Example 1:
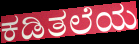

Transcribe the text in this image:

ಕಡಿತಲೆಯ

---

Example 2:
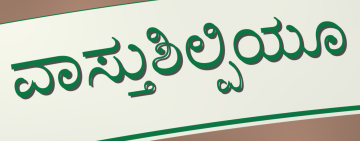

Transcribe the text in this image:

ವಾಸ್ತುಶಿಲ್ಪಿಯೂ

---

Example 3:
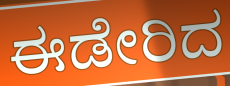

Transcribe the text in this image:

ಈಡೇರಿದ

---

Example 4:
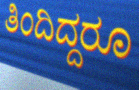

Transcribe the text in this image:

ತಿಂದಿದ್ದರೂ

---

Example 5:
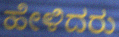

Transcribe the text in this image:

ಹೇಳಿದರು